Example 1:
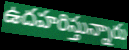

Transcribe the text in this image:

ఉదహరిస్తున్నారు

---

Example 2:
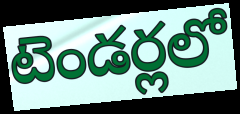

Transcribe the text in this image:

టెండర్లలో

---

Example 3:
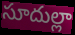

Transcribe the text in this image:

సూదుల్లా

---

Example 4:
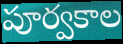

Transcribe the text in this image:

పూర్వకాల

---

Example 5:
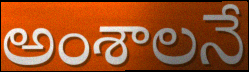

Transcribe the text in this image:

అంశాలనే